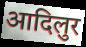
आदिलुर